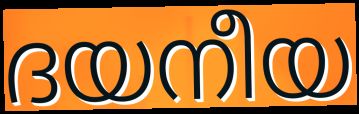
ദയനീയ